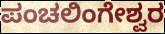
ಪಂಚಲಿಂಗೇಶ್ವರ